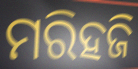
ମରିହଜି